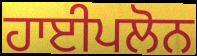
ਹਾਈਪਲੋਨ